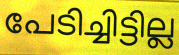
പേടിച്ചിട്ടില്ല